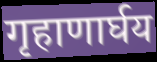
गृहाणार्घय